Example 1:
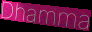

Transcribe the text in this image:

Dhamma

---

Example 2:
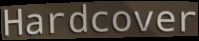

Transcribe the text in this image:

Hardcover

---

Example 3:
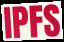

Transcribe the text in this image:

IPFS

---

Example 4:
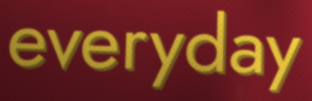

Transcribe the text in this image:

everyday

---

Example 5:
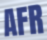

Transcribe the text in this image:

AFR